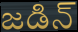
జడిన్